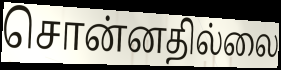
சொன்னதில்லை